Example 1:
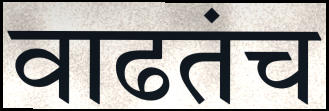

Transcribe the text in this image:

वाढतंच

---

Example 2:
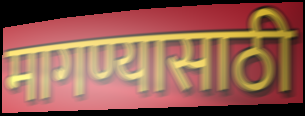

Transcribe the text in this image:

मागण्यासाठी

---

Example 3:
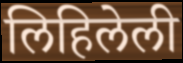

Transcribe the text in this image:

लिहिलेली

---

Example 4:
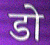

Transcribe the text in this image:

डो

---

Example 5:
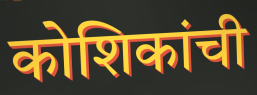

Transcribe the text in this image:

कोशिकांची